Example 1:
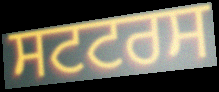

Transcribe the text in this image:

ਸਟਟਰਸ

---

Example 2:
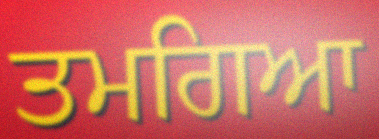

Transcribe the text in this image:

ਤਮਗਿਆ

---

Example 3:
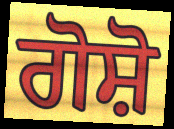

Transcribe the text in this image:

ਗੋਸ਼ੋ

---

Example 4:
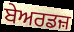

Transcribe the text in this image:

ਬੇਅਰਡਜ਼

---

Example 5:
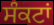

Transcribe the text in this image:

ਸੰਕਟਾਂ